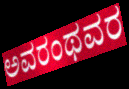
ಅವರಂಥವರ